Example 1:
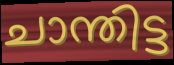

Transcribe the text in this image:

ചാന്തിട്ട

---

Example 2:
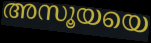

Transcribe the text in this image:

അസൂയയെ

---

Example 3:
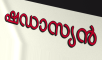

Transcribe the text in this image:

ഷഡാസ്യൻ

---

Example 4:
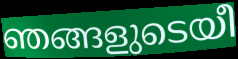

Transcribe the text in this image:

ഞങ്ങളുടെയീ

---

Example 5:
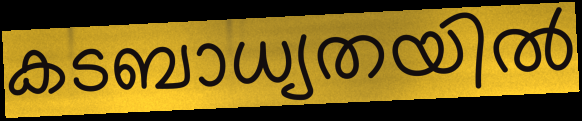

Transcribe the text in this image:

കടബാധ്യതയിൽ